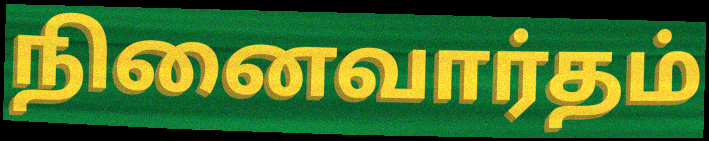
நினைவார்தம்